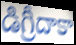
డిగ్రీదాకా